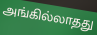
அங்கில்லாதது